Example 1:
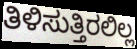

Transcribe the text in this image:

ತಿಳಿಸುತ್ತಿರಲಿಲ್ಲ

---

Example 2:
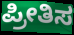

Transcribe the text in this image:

ಪ್ರೀತಿಸ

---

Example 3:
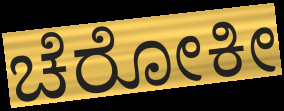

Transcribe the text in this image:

ಚೆರೋಕೀ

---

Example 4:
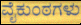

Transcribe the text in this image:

ವೈಕುಂಠಗಳು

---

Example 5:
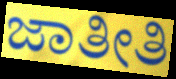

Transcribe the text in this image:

ಜಾತೀತಿ